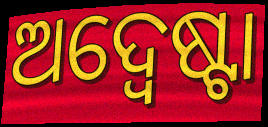
ଅଦ୍ୱେଷ୍ଟା